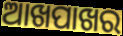
ଆଖପାଖର